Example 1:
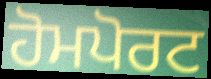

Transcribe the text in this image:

ਹੋਮਪੋਰਟ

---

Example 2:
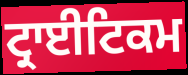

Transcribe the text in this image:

ਟ੍ਰਾਈਟਿਕਮ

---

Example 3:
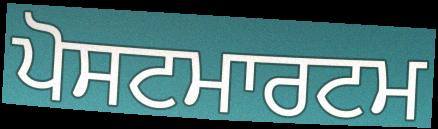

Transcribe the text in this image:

ਪੋਸਟਮਾਰਟਮ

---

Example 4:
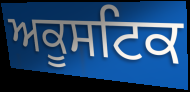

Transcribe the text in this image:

ਅਕੂਸਟਿਕ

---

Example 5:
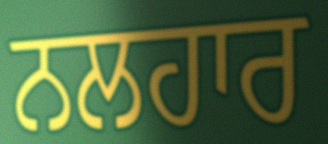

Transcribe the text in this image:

ਨਲਹਾਰ